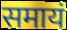
समायं